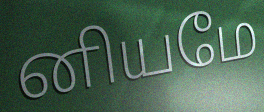
னியமே